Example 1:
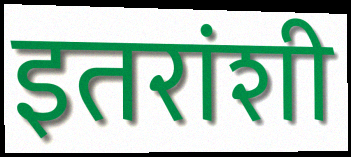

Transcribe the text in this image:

इतरांशी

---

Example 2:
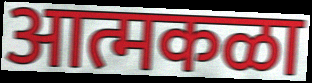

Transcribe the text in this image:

आत्मकळा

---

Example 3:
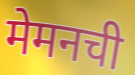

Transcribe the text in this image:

मेमनची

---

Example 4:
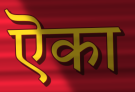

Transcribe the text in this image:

ऎका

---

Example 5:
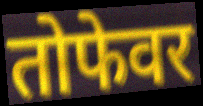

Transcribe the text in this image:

तोफेवर